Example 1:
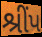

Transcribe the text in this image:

શ્રીંપ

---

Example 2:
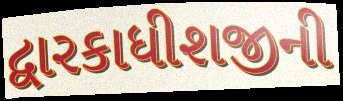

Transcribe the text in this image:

દ્વારકાધીશજીની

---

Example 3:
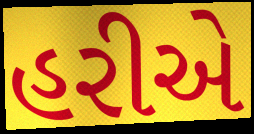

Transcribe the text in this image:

હરીએ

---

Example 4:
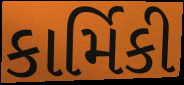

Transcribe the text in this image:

કાર્મિકી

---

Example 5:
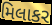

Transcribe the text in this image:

મિલાકર